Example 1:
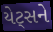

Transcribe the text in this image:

યેટ્સને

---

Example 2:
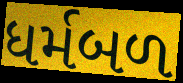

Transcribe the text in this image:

ધર્મબળ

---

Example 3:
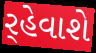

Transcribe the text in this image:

ર્‌હેવાશે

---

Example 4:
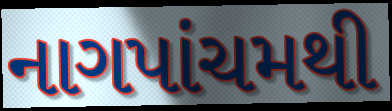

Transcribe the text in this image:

નાગપાંચમથી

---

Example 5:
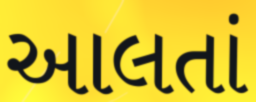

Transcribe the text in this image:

આલતાં